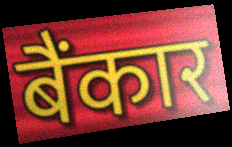
बैंकार